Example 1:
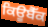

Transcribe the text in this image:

ਕਿਊਬੈੱਕ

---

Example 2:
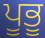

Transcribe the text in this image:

ਪੂਭੂ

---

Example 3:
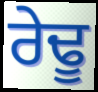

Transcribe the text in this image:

ਰੇਢੂ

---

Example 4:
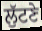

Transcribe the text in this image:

ਲੁੱਟਣੇ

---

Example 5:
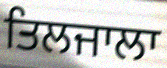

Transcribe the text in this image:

ਤਿਲਜਾਲਾ